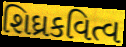
શિઘ્રકવિત્વ